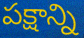
పక్షాన్ని